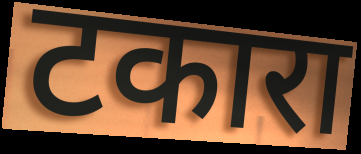
टकारा